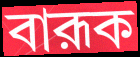
বারূক